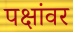
पक्षांवर